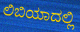
ಲಿಬಿಯಾದಲ್ಲಿ